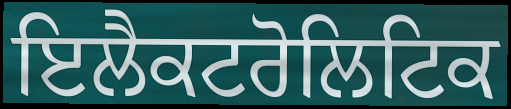
ਇਲੈਕਟਰੋਲਿਟਿਕ